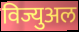
विज्युअल